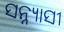
ସନ୍ନ୍ୟାସୀ